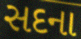
સદના